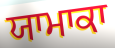
ਯਾਮਾਕਾ